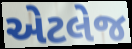
એટલેજ